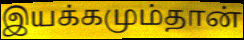
இயக்கமும்தான்